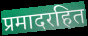
प्रमादरहित